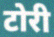
टोरी